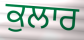
ਕੁਲਾਰ